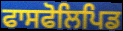
ਫਾਸਫੋਲਿਪਿਡ